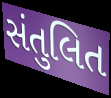
સંતુલિત